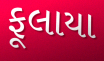
ફૂલાયા